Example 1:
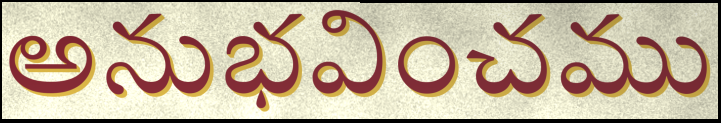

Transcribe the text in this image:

అనుభవించము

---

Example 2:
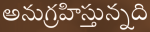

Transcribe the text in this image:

అనుగ్రహిస్తున్నది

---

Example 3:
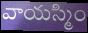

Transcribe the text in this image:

వాయస్మిం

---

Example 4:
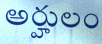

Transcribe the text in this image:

అర్హులం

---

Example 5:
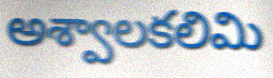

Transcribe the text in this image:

అశ్వాలకలిమి